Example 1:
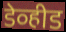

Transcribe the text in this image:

डेव्हीड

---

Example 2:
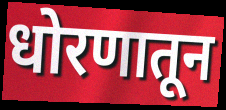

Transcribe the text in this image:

धोरणातून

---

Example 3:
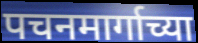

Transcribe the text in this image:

पचनमार्गाच्या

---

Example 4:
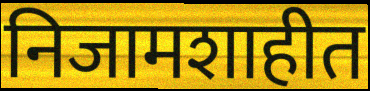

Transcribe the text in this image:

निजामशाहीत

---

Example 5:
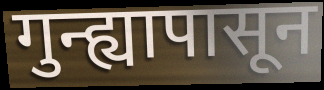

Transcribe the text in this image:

गुन्ह्यापासून